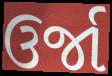
ઉર્જા